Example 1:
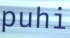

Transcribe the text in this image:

puhi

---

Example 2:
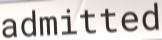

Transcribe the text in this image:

admitted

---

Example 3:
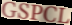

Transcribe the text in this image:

GSPCL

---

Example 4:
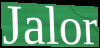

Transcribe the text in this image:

Jalor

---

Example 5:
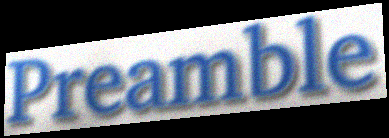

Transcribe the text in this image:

Preamble